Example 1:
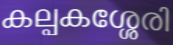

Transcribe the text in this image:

കല്പകശ്ശേരി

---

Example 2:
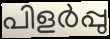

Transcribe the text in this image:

പിളർപ്പു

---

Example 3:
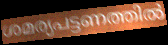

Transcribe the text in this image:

ശമര്യപട്ടണത്തിൽ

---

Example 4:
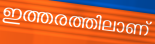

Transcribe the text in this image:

ഇത്തരത്തിലാണ്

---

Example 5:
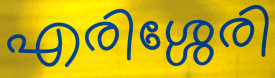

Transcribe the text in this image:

എരിശ്ശേരി